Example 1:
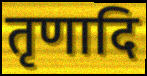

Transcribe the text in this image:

तृणादि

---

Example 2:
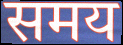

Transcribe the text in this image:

समय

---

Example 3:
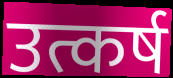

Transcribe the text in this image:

उत्कर्ष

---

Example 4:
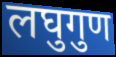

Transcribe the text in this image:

लघुगुण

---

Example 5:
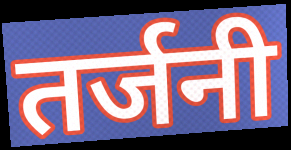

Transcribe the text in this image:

तर्जनी